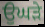
ਉਘੜੇ